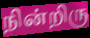
நின்றிரு